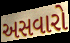
અસવારો